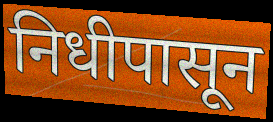
निधीपासून